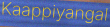
Kaappiyangal